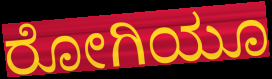
ರೋಗಿಯೂ